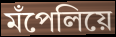
মঁপেলিয়ে